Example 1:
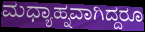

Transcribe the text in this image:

ಮಧ್ಯಾಹ್ನವಾಗಿದ್ದರೂ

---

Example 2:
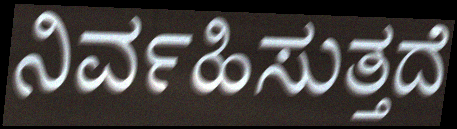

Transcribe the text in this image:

ನಿರ್ವಹಿಸುತ್ತದೆ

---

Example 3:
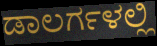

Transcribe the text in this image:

ಡಾಲರ್ಗಳಲ್ಲಿ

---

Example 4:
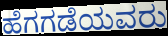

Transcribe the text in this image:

ಹೆಗಗಡೆಯವರು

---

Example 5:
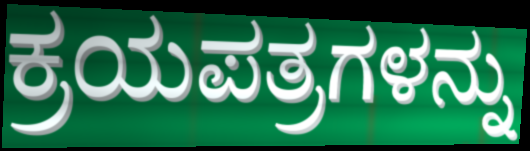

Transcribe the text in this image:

ಕ್ರಯಪತ್ರಗಳನ್ನು